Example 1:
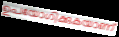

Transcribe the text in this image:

ഉപയോഗിക്കുകയാണ്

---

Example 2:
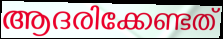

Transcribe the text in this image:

ആദരിക്കേണ്ടത്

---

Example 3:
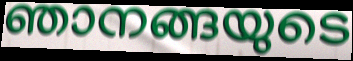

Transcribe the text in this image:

ഞാനങ്ങയുടെ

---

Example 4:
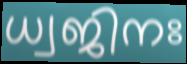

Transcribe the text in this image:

ധ്വജിനഃ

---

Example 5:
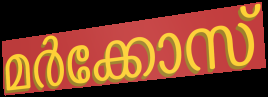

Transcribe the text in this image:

മർക്കോസ്